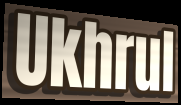
Ukhrul